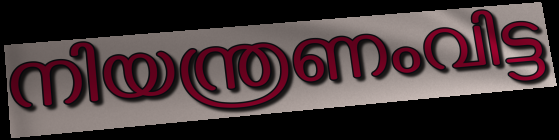
നിയന്ത്രണംവിട്ട